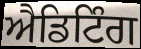
ਐਡਿਟਿੰਗ